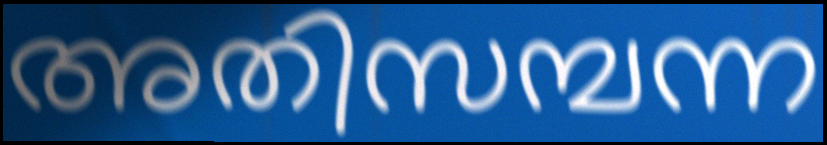
അതിസമ്പന്ന